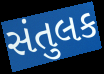
સંતુલક